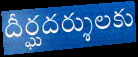
దీర్ఘదర్శులకు